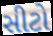
સીટો